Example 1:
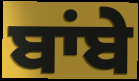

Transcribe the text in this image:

ਬਾਂਬੇ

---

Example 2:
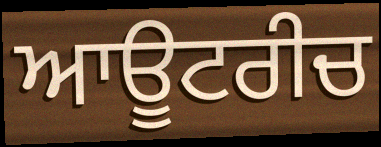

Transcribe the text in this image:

ਆਊਟਰੀਚ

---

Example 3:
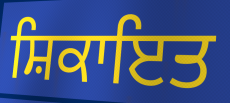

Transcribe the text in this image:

ਸ਼ਿਕਾਇਤ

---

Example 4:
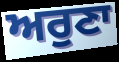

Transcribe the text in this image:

ਅਰੁਣਾ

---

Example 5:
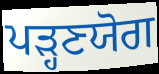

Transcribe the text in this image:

ਪੜ੍ਹਣਯੋਗ